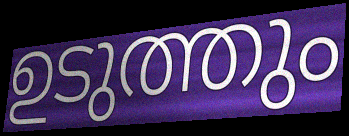
ഉടുത്തും